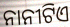
ନାନୀଟିଏ